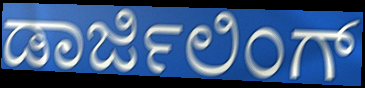
ಡಾರ್ಜಿಲಿಂಗ್